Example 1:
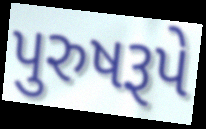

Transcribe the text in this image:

પુરુષરૂપે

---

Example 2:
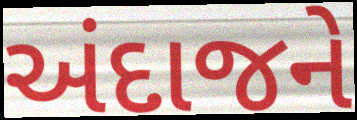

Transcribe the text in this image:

અંદાજને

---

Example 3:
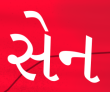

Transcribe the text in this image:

સેન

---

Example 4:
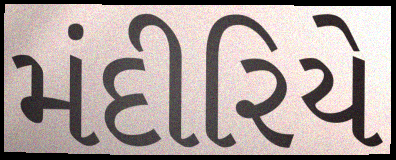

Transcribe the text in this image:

મંદીરિયે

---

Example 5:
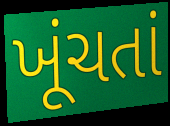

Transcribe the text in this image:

ખૂંચતાં